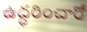
ఉద్ధరించారో